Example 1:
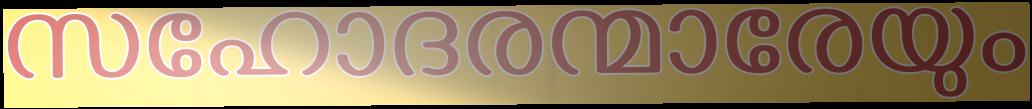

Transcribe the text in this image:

സഹോദരന്മാരേയും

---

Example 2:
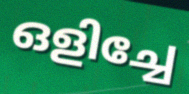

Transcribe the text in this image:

ഒളിച്ചേ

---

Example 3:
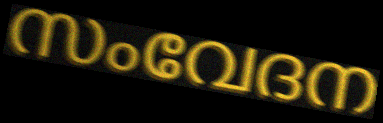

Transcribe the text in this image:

സംവേദന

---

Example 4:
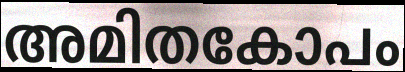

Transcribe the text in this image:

അമിതകോപം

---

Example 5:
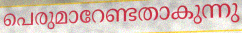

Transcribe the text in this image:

പെരുമാറേണ്ടതാകുന്നു